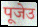
पूजेउ